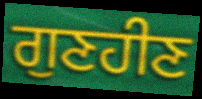
ਗੁਣਹੀਣ